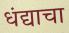
धंद्याचा